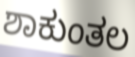
ಶಾಕುಂತಲ